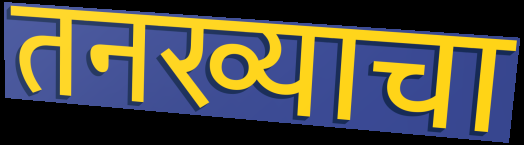
तनख्याचा